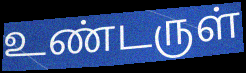
உண்டருள்